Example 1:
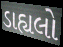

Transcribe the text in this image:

ડાહ્યલો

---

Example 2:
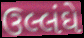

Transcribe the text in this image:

ઉલ્લંઘે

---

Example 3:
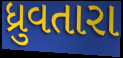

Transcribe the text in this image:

ધ્રુવતારા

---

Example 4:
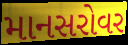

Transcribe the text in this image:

માનસરોવર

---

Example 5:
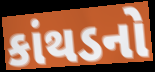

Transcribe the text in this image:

કાંથડનો